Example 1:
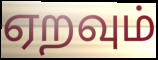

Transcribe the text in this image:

ஏறவும்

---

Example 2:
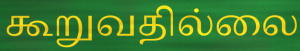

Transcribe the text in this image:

கூறுவதில்லை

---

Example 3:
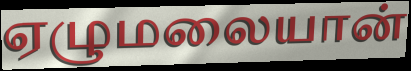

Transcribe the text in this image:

ஏழுமலையான்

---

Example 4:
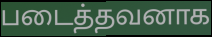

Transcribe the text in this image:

படைத்தவனாக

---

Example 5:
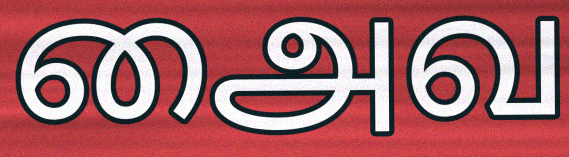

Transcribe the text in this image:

அைவ